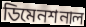
ডিমেনশনাল